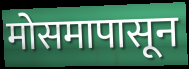
मोसमापासून